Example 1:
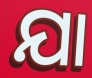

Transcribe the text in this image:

ଯା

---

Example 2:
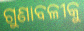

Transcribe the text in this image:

ଗୁଣାବଳୀକୁ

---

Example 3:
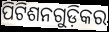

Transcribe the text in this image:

ପିଟିଶନଗୁଡ଼ିକର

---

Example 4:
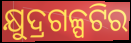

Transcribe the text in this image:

କ୍ଷୁଦ୍ରଗଳ୍ପଟିର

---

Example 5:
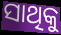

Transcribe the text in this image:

ସାଥିକୁ